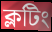
ক্লটিং